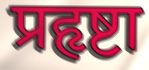
प्रहृष्टा